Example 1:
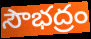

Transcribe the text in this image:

సౌభద్రం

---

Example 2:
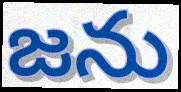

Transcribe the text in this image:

జను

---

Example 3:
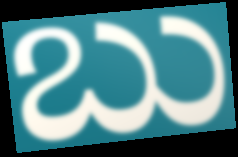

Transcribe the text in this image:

బు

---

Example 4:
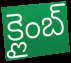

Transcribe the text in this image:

క్లైంబ్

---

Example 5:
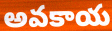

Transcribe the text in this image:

అవకాయ